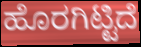
ಹೊರಗಿಟ್ಟಿದೆ